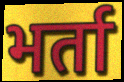
भर्ता